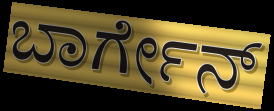
ಬಾರ್ಗೇನ್